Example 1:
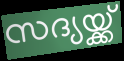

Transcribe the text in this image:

സദ്യയ്ക്ക്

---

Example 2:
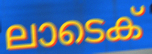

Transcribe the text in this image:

ലാടെക്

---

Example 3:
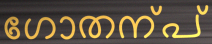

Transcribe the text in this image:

ഗോതന്പ്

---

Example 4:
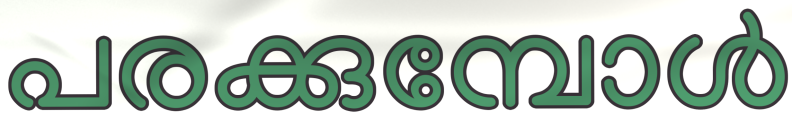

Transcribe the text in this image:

പരക്കുമ്പോൾ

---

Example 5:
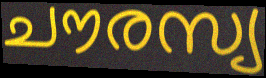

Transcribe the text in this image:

ചൗരസ്യ